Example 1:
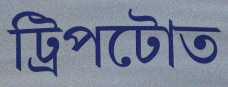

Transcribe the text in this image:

ট্ৰিপটোত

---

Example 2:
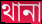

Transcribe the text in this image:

থানা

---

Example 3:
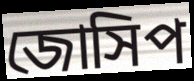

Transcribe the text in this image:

জোসিপ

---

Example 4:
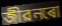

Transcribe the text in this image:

জীৱনৰো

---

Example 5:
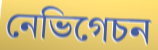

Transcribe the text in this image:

নেভিগেচন